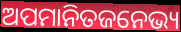
ଅପମାନିତଜନେଭ୍ୟ